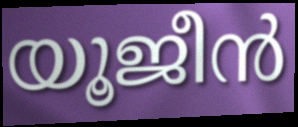
യൂജീൻ